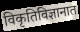
विकृतिविज्ञानात